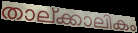
താല്ക്കാലികം